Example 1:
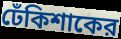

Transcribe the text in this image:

ঢেঁকিশাকের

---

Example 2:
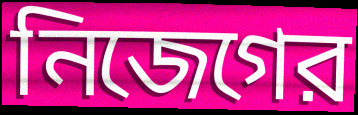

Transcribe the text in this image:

নিজেগের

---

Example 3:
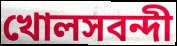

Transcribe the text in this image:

খোলসবন্দী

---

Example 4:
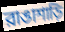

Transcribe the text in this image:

রাঙাশাড়ি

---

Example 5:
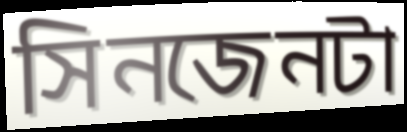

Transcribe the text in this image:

সিনজেনটা